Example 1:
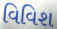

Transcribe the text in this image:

વિવિશ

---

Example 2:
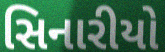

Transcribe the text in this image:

સિનારીયો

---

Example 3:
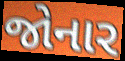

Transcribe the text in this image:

જોનાર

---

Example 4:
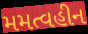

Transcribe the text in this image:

મમત્વહીન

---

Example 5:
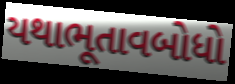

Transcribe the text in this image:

યથાભૂતાવબોધો